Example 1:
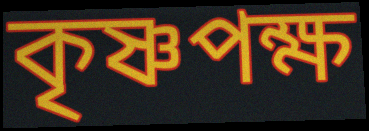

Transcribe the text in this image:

কৃষ্ণপক্ষ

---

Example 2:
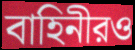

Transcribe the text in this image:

বাহিনীরও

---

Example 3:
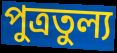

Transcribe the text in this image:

পুত্রতুল্য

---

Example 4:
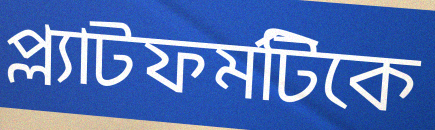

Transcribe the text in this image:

প্ল্যাটফর্মটিকে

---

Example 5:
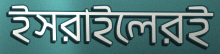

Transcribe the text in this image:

ইসরাইলেরই